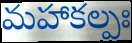
మహాకల్పః